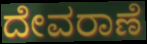
ದೇವರಾಣೆ